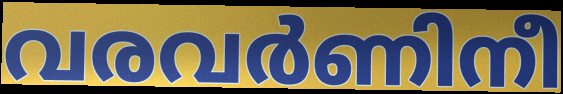
വരവർണിനീ